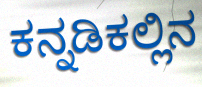
ಕನ್ನಡಿಕಲ್ಲಿನ